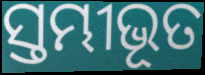
ସ୍ତମ୍ଭୀଭୂତ